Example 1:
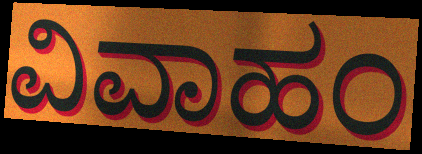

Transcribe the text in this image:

ವಿವಾಹಂ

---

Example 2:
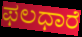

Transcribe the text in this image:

ಫಲಧಾರೆ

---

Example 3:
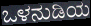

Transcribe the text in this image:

ಒಳನುಡಿಯ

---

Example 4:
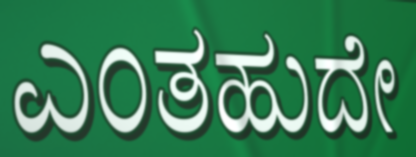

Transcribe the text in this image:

ಎಂತಹುದೇ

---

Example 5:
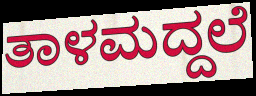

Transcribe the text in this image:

ತಾಳಮದ್ದಲೆ